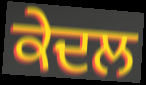
ਕੇਦਲ